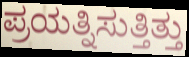
ಪ್ರಯತ್ನಿಸುತ್ತಿತ್ತು